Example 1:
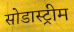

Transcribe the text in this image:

सोडास्ट्रीम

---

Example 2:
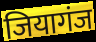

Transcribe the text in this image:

जियागंज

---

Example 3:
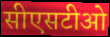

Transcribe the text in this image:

सीएसटीओ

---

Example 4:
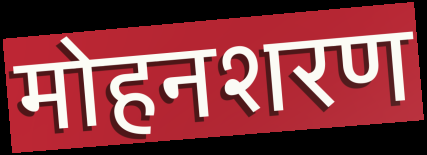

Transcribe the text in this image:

मोहनशरण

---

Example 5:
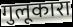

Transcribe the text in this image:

गुलूकारा